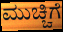
ಮುಚ್ಚಿಗೆ